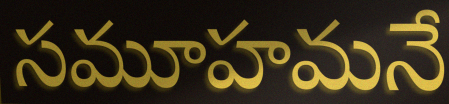
సమూహమనే